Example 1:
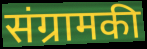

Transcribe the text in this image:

संग्रामकी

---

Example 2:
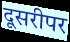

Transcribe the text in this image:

दूसरीपर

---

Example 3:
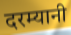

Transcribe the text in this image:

दरम्यानी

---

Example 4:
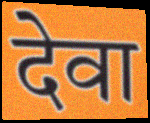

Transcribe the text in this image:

देवा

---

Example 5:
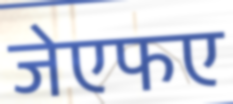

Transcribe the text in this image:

जेएफए